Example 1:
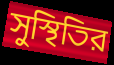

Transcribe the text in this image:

সুস্থিতির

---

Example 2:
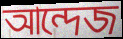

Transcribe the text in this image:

আন্দেজ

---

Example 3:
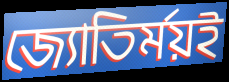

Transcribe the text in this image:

জ্যোতির্ময়ই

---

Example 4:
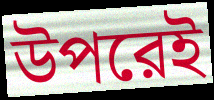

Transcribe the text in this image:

উপরেই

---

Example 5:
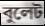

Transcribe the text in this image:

বুলেট